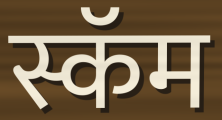
स्कॅम